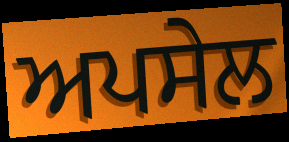
ਅਪਸੇਲ